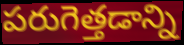
పరుగెత్తడాన్ని